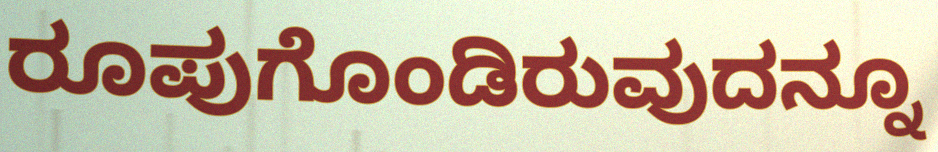
ರೂಪುಗೊಂಡಿರುವುದನ್ನೂ